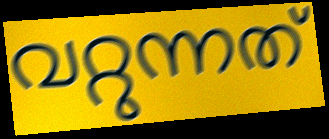
വറ്റുന്നത്